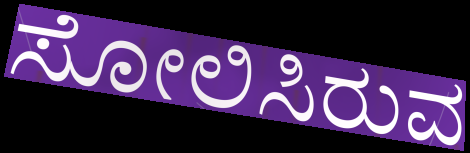
ಸೋಲಿಸಿರುವ